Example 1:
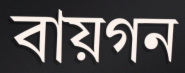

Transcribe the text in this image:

বায়গন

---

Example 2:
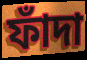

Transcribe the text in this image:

ফাঁদা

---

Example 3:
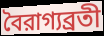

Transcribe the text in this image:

বৈরাগ্যব্রতী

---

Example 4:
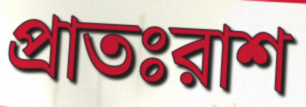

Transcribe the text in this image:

প্রাতঃরাশ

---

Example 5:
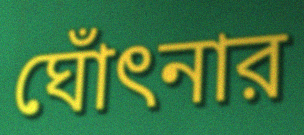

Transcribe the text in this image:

ঘোঁৎনার